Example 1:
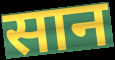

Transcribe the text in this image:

सान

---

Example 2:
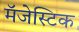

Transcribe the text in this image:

मॅजेस्टिक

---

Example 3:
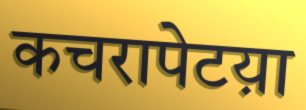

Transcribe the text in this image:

कचरापेटय़ा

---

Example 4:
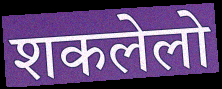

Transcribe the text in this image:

शकलेलो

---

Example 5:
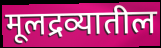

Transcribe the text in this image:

मूलद्रव्यातील